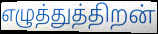
எழுத்துத்திறன்